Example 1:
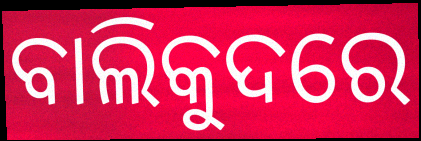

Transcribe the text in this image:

ବାଲିକୁଦରେ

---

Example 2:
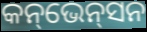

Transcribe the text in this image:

କନ୍‌ଭେନ୍‌ସନ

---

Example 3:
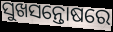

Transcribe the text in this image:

ସୁଖସନ୍ତୋଷରେ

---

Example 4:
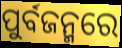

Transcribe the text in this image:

ପୁର୍ବଜନ୍ମରେ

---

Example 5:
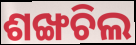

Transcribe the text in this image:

ଶଙ୍ଖଚିଲ